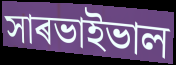
সাৰভাইভাল